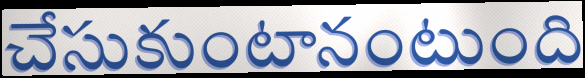
చేసుకుంటానంటుంది